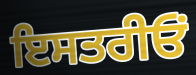
ਇਸਤਰੀਓਂ